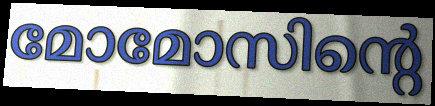
മോമോസിന്റെ